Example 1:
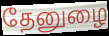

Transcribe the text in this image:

தேனுழை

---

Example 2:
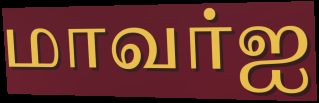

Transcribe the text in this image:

மாவர்ஐ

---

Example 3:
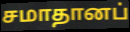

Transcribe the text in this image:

சமாதானப்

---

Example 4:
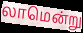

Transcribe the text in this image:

லாமென்று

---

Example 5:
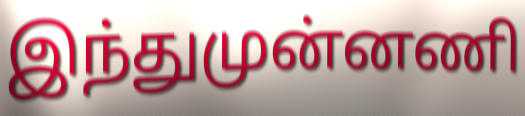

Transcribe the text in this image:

இந்துமுன்னணி